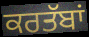
ਕਰਤੱਬਾਂ